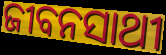
ଜୀବନସାଥୀ